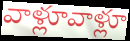
వాళ్లూవాళ్లూ